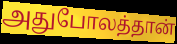
அதுபோலத்தான்